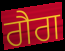
ਗੈਗ